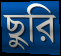
ছুরি